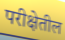
परीक्षेतील